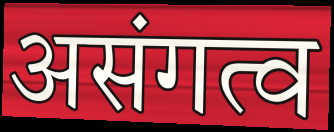
असंगत्व